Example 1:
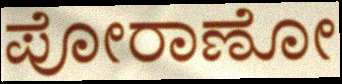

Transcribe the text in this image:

ಪೋರಾಣೋ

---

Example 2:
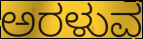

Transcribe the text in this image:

ಅರಳುವ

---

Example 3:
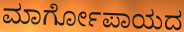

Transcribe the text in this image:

ಮಾರ್ಗೋಪಾಯದ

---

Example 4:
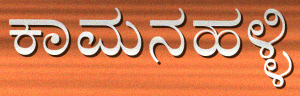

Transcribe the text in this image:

ಕಾಮನಹಳ್ಳಿ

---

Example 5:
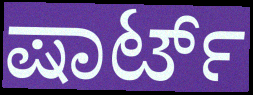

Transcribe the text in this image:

ಷಾರ್ಟ್